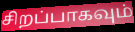
சிறப்பாகவும்